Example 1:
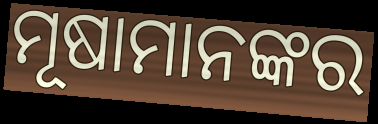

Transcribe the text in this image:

ମୂଷାମାନଙ୍କର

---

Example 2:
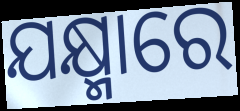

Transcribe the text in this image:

ଯକ୍ଷ୍ମାରେ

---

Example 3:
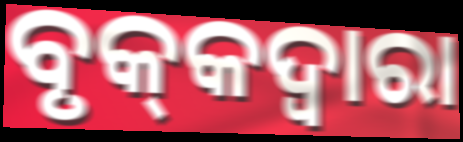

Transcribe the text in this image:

ବୃକ୍‌କଦ୍ଵାରା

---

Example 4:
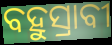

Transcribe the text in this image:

ବହୁସ୍ରାବୀ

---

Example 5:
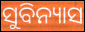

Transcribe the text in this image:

ସୁବିନ୍ୟାସ